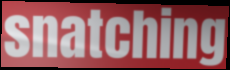
snatching